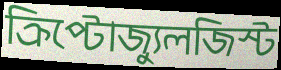
ক্রিপ্টোজ্যুলজিস্ট